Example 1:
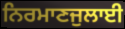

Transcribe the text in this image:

ਨਿਰਮਾਣਜੁਲਾਈ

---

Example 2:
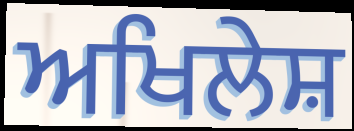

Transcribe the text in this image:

ਅਖਿਲੇਸ਼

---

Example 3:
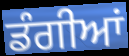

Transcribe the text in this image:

ਡੰਗੀਆਂ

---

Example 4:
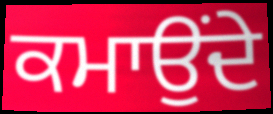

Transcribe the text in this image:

ਕਮਾਉਂਦੇ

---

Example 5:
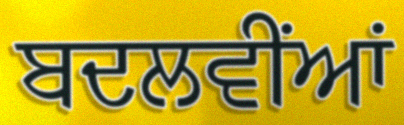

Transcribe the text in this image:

ਬਦਲਵੀਂਆਂ